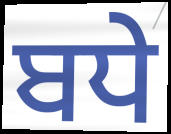
ਬਧੇ